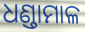
ଧଣ୍ଡାମାଳ